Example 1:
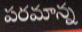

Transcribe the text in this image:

పరమాన్న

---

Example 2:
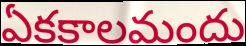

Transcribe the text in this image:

ఏకకాలమందు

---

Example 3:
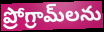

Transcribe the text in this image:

ప్రోగ్రామ్‌లను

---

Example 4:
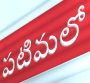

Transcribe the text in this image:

పటిమలో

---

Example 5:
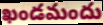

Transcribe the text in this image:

ఖండమందు